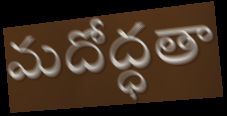
మదోద్ధతా